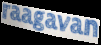
raagavan